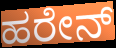
ಹರೇನ್